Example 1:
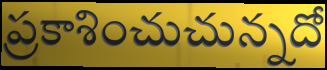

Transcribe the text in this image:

ప్రకాశించుచున్నదో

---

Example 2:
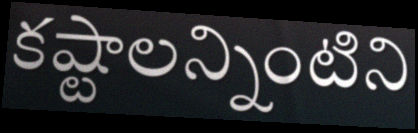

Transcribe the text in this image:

కష్టాలన్నింటిని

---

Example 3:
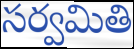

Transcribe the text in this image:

సర్వమితి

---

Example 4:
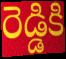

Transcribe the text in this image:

రెడ్డికి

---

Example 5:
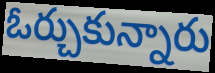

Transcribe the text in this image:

ఓర్చుకున్నారు